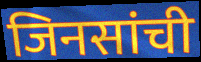
जिनसांची